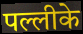
पल्लीके